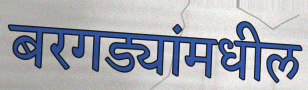
बरगड्यांमधील